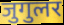
जुगुलर